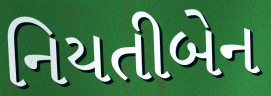
નિયતીબેન